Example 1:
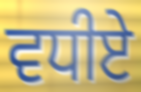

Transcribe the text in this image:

ਵਧੀਏ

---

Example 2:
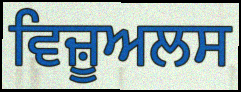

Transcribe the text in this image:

ਵਿਜ਼ੂਅਲਸ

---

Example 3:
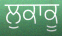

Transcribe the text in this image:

ਲੁਕਾਕੂ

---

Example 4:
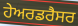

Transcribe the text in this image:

ਹੇਅਰਡਰੈਸਰ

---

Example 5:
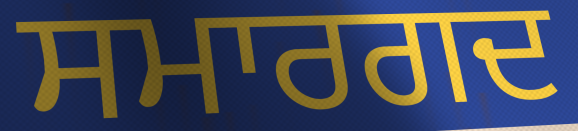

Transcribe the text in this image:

ਸਮਾਰਗਦ